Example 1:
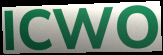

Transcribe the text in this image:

ICWO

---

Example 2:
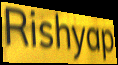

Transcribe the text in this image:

Rishyap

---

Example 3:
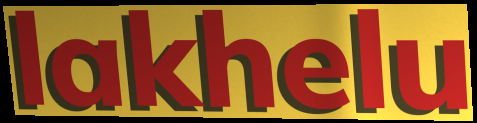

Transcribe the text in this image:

lakhelu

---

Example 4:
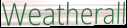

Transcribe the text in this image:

Weatherall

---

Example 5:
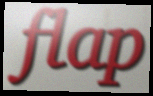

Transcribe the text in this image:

flap